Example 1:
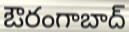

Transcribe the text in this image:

ఔరంగాబాద్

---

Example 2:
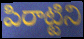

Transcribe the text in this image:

పిరాట్టిని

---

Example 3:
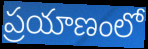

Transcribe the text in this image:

ప్రయాణంలో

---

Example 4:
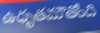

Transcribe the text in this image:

ఉధృతమౌతోంది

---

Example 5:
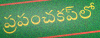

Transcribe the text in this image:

ప్రపంచకప్‌లో